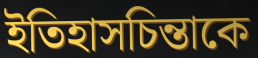
ইতিহাসচিন্তাকে